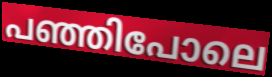
പഞ്ഞിപോലെ